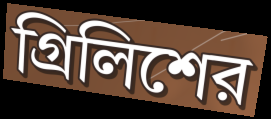
গ্রিলিশের